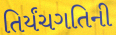
તિર્યંચગતિની